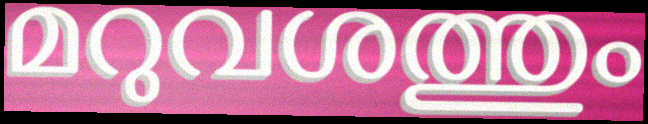
മറുവശത്തും